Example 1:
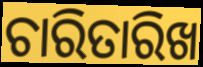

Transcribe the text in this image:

ଚାରିତାରିଖ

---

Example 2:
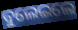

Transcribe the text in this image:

ବୁଲେଇଲେ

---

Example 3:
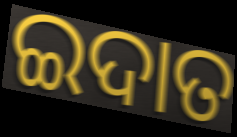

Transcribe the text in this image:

ଇଦାତ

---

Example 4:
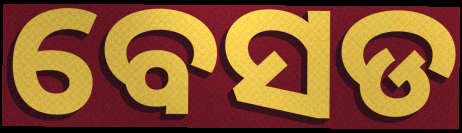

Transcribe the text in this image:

ବେସଡ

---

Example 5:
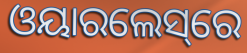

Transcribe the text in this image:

ଓୟାରଲେସ୍‌ରେ